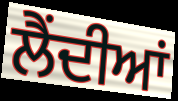
ਲੈਂਦੀਆਂ